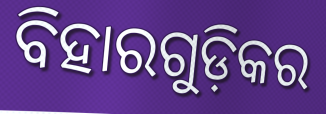
ବିହାରଗୁଡ଼ିକର